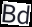
Bd